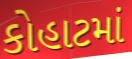
કોહાટમાં